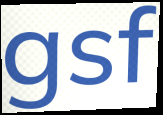
gsf